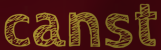
canst